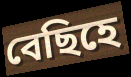
বেছিহে